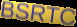
BSRTC